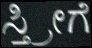
ಸ್ತ್ರೀಗೆ